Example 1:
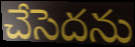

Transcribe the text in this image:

చేసెదను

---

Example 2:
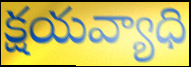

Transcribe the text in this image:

క్షయవ్యాధి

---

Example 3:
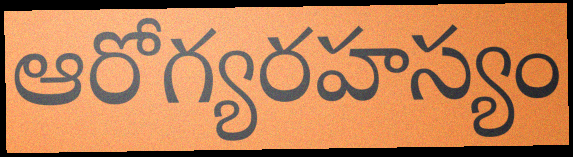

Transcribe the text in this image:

ఆరోగ్యరహస్యం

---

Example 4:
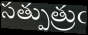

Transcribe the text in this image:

సత్పుత్రుఁ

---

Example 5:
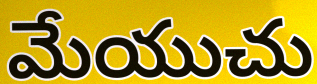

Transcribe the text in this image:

మేయుచు